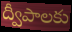
ద్వీపాలకు